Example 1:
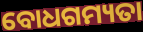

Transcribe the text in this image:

ବୋଧଗମ୍ୟତା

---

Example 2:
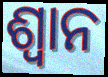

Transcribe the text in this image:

ଶ୍ଵାନ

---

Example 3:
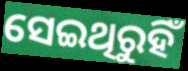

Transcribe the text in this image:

ସେଇଥିରୁହିଁ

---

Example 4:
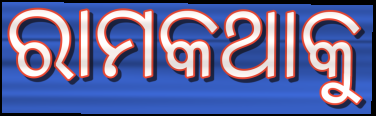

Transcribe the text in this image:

ରାମକଥାକୁ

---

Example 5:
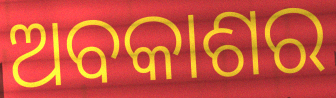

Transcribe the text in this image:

ଅବକାଶର